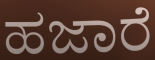
ಹಜಾರೆ